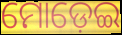
ମୋଡ଼େଇ